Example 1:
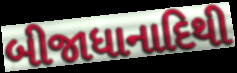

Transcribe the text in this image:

બીજાધાનાદિથી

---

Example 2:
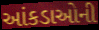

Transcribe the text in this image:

આંકડાઓની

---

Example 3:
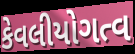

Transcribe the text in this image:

કેવલીયોગત્વ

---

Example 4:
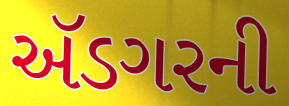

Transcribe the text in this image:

ઍડગરની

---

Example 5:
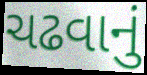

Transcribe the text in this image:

ચઢવાનું